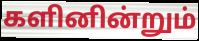
களினின்றும்